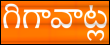
గిగావాట్ల